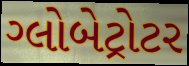
ગ્લોબેટ્રોટર